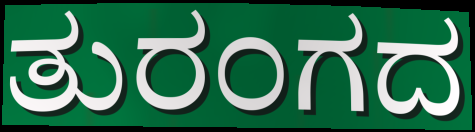
ತುರಂಗದ